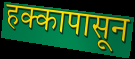
हक्कापासून